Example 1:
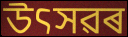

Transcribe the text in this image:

উৎসৱৰ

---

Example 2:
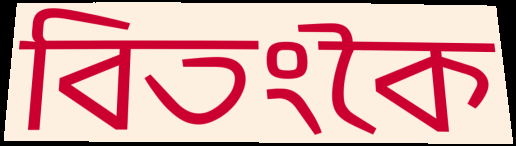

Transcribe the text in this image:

বিতংকৈ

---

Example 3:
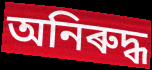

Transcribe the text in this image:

অনিৰুদ্ধ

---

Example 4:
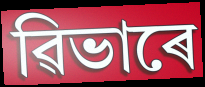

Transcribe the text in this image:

ৱিভাৰে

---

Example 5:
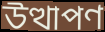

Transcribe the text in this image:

উত্থাপণ